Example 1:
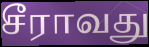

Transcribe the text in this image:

சீராவது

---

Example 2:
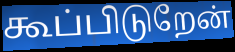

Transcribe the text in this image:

கூப்பிடுறேன்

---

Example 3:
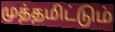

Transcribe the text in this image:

முத்தமிட்டும்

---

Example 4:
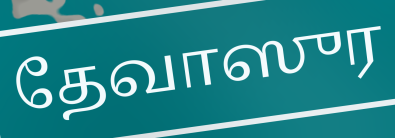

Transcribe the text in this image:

தேவாஸுர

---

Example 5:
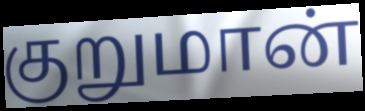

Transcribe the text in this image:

குறுமான்